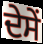
ਦੇਸੇਂ